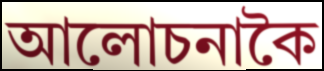
আলোচনাকৈ